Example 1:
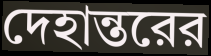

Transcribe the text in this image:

দেহান্তরের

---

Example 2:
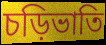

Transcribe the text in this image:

চড়িভাতি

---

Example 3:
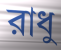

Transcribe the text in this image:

রাধু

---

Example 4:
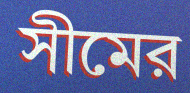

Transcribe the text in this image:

সীমের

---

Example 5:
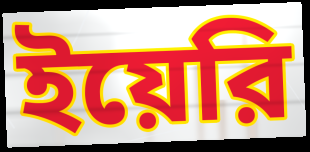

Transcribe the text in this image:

ইয়েরি